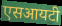
एसआयटी